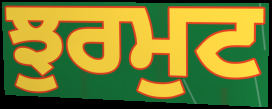
ਝੁਰਮੁਟ